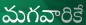
మగవారికే